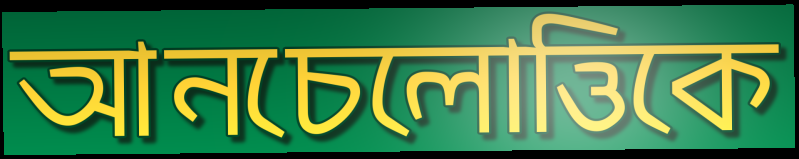
আনচেলোত্তিকে